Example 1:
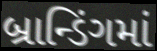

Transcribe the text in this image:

બ્રાન્ડિંગમાં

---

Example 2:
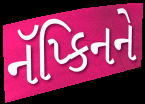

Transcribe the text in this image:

નૅપ્કિનને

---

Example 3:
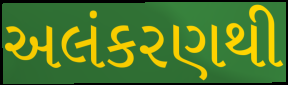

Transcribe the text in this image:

અલંકરણથી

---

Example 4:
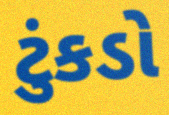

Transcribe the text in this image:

ટુંકડો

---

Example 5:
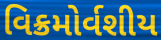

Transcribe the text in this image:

વિક્રમોર્વશીય